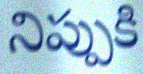
నిప్పుకి